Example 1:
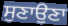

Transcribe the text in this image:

ਸੁਣਾਉਣਾ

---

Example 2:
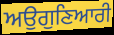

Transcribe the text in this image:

ਅਉਗੁਣਿਆਰੀ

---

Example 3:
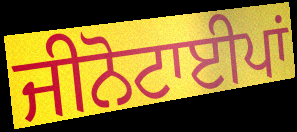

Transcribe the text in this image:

ਜੀਨੋਟਾਈਪਾਂ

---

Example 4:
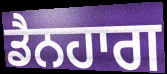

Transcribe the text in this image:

ਡੈਨਹਾਗ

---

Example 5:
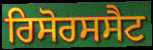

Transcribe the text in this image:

ਰਿਸੋਰਸਸੈਟ